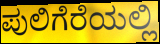
ಪುಲಿಗೆರೆಯಲ್ಲಿ